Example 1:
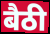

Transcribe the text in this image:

बैठी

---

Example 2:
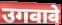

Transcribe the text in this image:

उगवावे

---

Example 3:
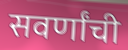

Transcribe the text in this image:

सवर्णांची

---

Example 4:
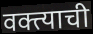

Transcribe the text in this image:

वक्त्याची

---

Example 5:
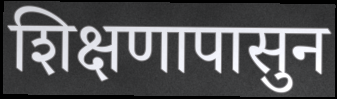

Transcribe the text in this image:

शिक्षणापासुन